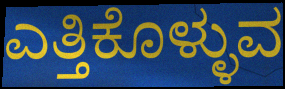
ಎತ್ತಿಕೊಳ್ಳುವ